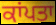
ਕਾਂਪਤਾ